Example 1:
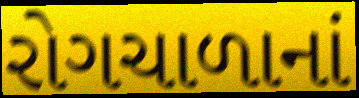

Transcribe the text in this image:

રોગચાળાનાં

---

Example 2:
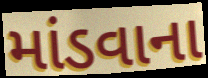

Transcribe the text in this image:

માંડવાના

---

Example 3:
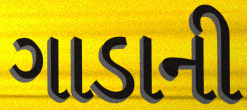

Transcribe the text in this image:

ગાડાની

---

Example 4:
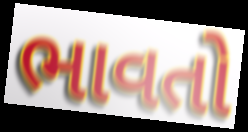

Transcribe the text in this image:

ભાવતો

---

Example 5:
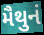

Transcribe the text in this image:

મૈથુનં